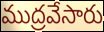
ముద్రవేసారు